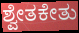
ಶ್ವೇತಕೇತು